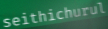
seithichurul